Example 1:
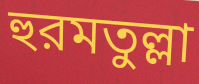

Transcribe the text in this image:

হুরমতুল্লা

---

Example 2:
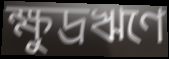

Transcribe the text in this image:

ক্ষুদ্রঋণে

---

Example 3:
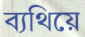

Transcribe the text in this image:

ব্যথিয়ে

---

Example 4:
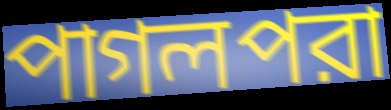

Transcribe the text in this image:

পাগলপরা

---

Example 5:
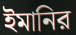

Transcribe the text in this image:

ইমানির